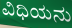
ವಿಧಿಯನು